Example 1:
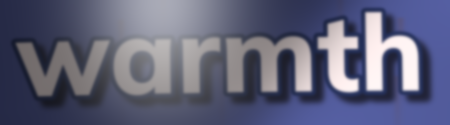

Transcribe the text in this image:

warmth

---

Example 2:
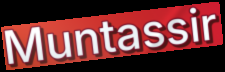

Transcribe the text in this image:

Muntassir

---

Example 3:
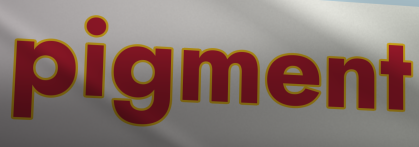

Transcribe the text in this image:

pigment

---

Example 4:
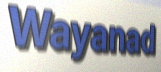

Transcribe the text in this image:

Wayanad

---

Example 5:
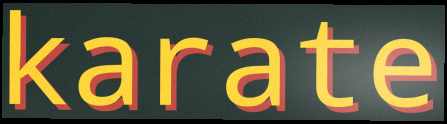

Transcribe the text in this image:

karate